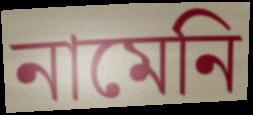
নামেনি